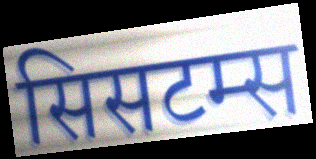
सिसटम्स